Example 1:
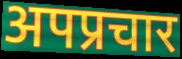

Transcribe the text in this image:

अपप्रचार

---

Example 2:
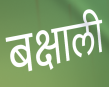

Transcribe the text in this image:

बक्षाली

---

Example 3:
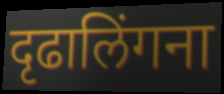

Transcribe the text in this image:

दृढालिंगना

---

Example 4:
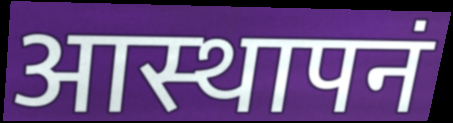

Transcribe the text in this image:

आस्थापनं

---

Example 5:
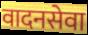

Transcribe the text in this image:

वादनसेवा